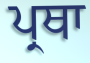
ਪ੍ਰਥਾ